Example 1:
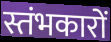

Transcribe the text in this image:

स्तंभकारों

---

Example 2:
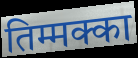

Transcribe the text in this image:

तिम्मक्का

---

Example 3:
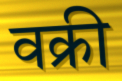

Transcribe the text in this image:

वक्री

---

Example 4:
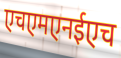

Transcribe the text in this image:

एचएमएनईएच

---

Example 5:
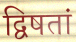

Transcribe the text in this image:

द्विषतां